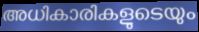
അധികാരികളുടെയും